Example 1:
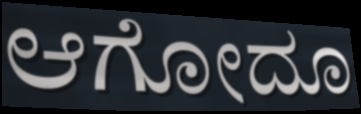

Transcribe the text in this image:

ಆಗೋದೂ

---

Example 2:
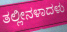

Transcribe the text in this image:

ತಲ್ಲೀನಳಾದಳು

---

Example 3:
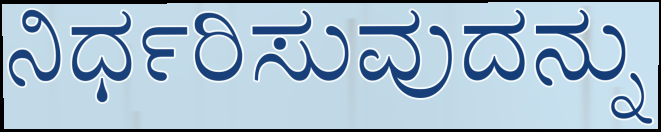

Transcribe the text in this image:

ನಿರ್ಧರಿಸುವುದನ್ನು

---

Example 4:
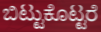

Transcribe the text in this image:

ಬಿಟ್ಟುಕೊಟ್ಟರೆ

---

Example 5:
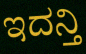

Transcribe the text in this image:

ಇದನ್ತಿ